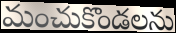
మంచుకొండలను